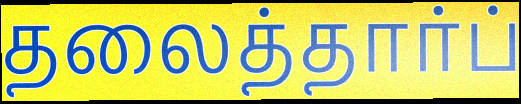
தலைத்தார்ப்